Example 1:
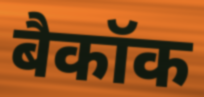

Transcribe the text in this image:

बैकॉक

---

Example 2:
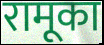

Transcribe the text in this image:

रामूका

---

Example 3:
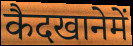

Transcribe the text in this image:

कैदखानेमें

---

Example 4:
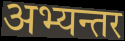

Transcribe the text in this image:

अभ्यन्तर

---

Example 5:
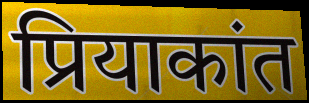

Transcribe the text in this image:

प्रियाकांत